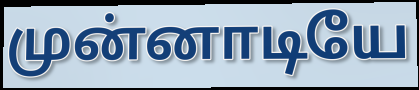
முன்னாடியே